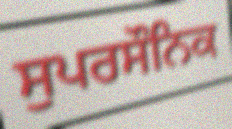
ਸੁਪਰਸੌਨਿਕ